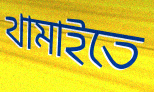
থামাইতে